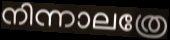
നിന്നാലത്രേ